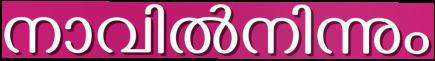
നാവിൽനിന്നും